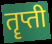
तॄप्ती